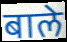
बाले